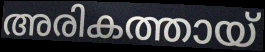
അരികത്തായ്